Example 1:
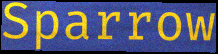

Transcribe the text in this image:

Sparrow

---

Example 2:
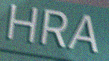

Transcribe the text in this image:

HRA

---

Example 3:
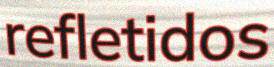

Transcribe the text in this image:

refletidos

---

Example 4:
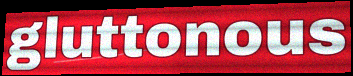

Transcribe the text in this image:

gluttonous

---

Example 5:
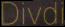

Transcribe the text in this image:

Divdi